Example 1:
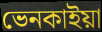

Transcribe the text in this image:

ভেনকাইয়া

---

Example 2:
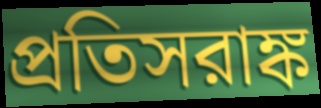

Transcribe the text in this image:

প্রতিসরাঙ্ক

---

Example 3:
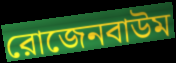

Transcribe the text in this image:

রোজেনবাউম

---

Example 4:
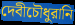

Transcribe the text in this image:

দেবীচৌধুরানি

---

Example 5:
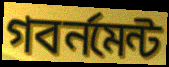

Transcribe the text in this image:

গবর্নমেন্ট